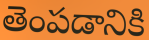
తెంపడానికి